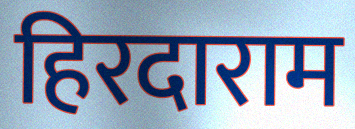
हिरदाराम